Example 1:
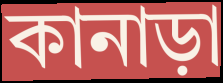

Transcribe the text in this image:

কানাড়া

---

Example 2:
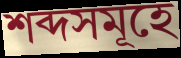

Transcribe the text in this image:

শব্দসমূহে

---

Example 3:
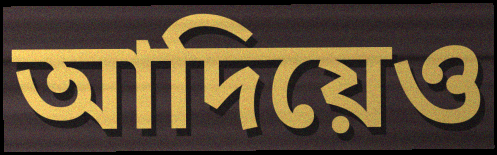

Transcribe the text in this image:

আদিয়েও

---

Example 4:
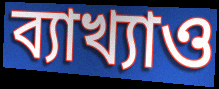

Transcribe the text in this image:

ব্যাখ্যাও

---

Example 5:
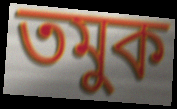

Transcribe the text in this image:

তমুক